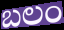
బలం